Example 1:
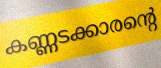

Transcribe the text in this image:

കണ്ണടക്കാരന്റെ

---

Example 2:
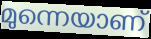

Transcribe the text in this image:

മുന്നെയാണ്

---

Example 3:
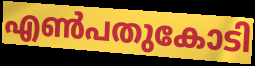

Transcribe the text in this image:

എൺപതുകോടി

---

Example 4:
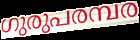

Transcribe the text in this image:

ഗുരുപരമ്പര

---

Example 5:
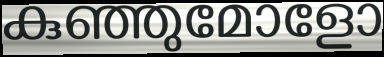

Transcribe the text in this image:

കുഞ്ഞുമോളോ